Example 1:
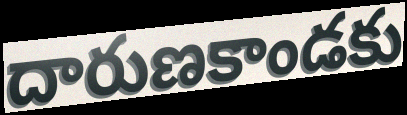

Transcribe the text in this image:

దారుణకాండకు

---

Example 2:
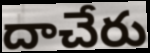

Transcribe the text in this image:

దాచేరు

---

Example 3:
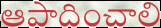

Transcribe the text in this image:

ఆపాదించాలి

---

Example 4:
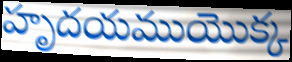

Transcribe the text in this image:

హృదయముయొక్క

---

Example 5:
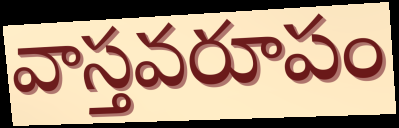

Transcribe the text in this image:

వాస్తవరూపం